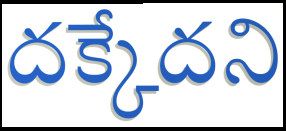
దక్కేదని